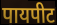
पायपीट